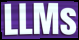
LLMs